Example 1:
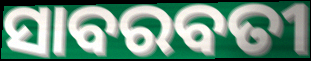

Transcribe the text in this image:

ସାବରବତୀ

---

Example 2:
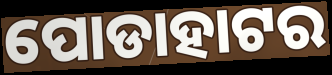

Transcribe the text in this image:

ପୋଡାହାଟର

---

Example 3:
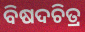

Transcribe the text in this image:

ବିଷଦଚିତ୍ର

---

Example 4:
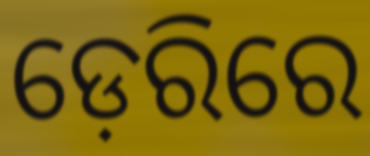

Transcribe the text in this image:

ଡ଼େରିରେ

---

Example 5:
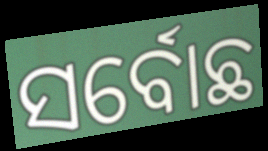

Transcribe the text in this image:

ସର୍ବୋଛ